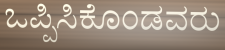
ಒಪ್ಪಿಸಿಕೊಂಡವರು